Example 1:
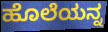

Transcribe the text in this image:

ಹೊಲೆಯನ್ನ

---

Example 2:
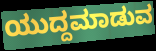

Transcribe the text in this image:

ಯುದ್ದಮಾಡುವ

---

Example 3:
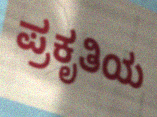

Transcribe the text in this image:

ಪ್ರಕೃತಿಯ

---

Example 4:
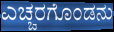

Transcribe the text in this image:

ಎಚ್ಚರಗೊಂಡನು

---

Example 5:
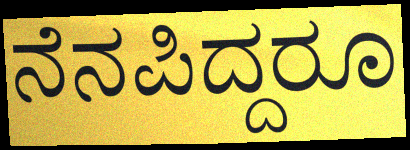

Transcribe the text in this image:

ನೆನಪಿದ್ದರೂ